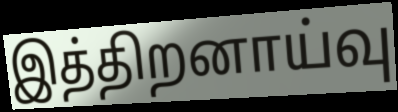
இத்திறனாய்வு